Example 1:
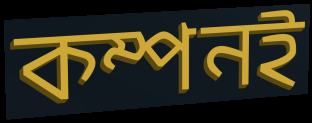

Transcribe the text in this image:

কম্পনই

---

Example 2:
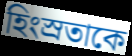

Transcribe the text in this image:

হিংস্রতাকে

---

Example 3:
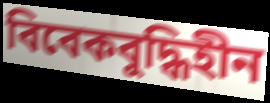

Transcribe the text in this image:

বিবেকবুদ্ধিহীন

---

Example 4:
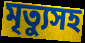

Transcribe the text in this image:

মৃত্যুসহ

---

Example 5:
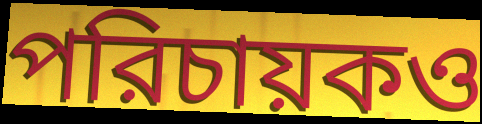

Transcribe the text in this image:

পরিচায়কও